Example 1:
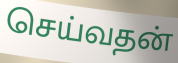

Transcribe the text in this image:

செய்வதன்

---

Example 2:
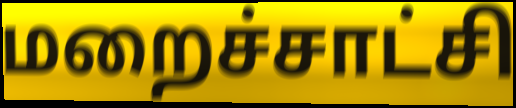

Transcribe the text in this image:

மறைச்சாட்சி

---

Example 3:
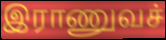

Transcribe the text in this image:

இராணுவச்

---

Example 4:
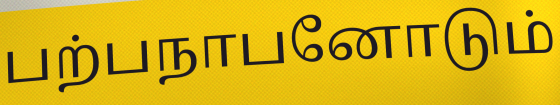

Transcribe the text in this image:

பற்பநாபனோடும்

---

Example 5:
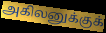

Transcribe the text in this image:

அகிலனுக்குக்